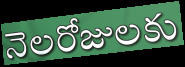
నెలరోజులకు